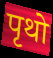
पृथो